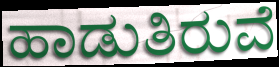
ಹಾಡುತಿರುವೆ